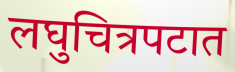
लघुचित्रपटात